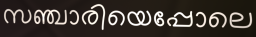
സഞ്ചാരിയെപ്പോലെ